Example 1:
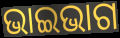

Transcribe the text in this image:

ଭାଇଭାଗ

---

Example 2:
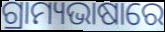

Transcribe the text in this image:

ଗ୍ରାମ୍ୟଭାଷାରେ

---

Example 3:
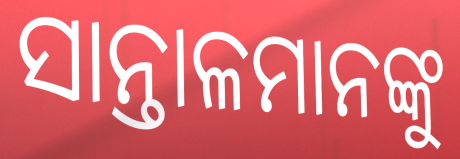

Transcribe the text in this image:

ସାନ୍ତାଳମାନଙ୍କୁ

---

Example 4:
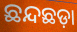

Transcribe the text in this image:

ଛନ୍ଦଛଡ଼ା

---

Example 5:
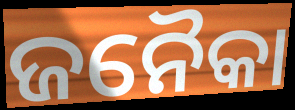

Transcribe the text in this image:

ଜନୈକା